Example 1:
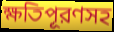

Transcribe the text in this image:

ক্ষতিপূরণসহ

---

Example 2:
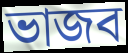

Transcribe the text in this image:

ভাজব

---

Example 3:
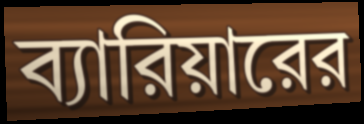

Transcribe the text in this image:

ব্যারিয়ারের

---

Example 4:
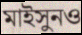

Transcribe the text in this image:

মাইসুনও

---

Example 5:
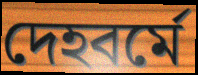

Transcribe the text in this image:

দেহবর্মে